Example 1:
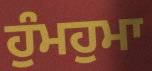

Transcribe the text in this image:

ਹੁੰਮਹੁਮਾ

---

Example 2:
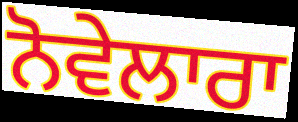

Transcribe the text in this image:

ਨੋਵੇਲਾਰਾ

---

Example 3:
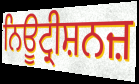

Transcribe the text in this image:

ਨਿਊਟ੍ਰੀਸ਼ਨਜ਼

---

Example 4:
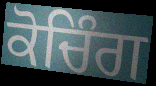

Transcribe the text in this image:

ਕੋਚਿੰਗ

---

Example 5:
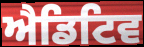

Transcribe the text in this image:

ਐਡਿਟਿਵ